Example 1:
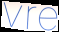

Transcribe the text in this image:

vre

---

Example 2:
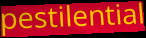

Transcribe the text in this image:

pestilential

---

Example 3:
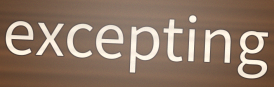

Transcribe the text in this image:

excepting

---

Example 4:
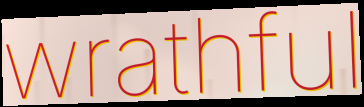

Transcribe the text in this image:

wrathful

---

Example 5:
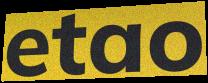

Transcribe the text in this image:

etao